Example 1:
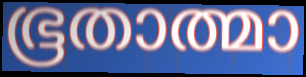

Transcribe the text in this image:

ഭൂതാത്മാ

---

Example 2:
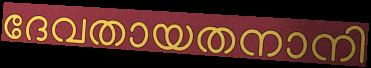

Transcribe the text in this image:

ദേവതായതനാനി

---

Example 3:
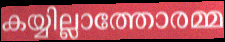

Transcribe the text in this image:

കയ്യില്ലാത്തോരമ്മ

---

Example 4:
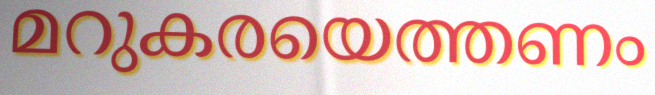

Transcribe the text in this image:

മറുകരയെത്തണം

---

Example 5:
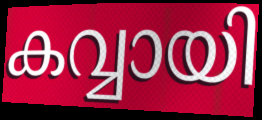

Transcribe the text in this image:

കവ്വായി